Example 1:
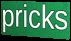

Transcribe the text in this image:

pricks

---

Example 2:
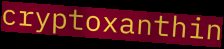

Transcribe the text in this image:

cryptoxanthin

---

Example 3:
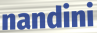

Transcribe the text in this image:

nandini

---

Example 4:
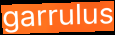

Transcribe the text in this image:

garrulus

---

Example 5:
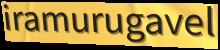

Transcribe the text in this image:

iramurugavel